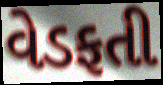
વેડફતી